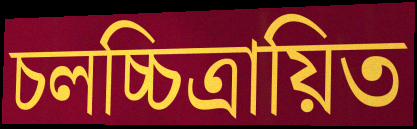
চলচ্চিত্রায়িত